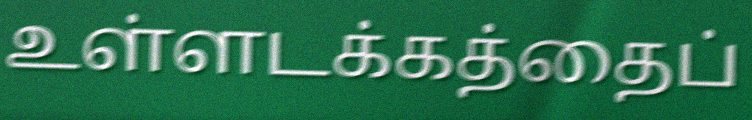
உள்ளடக்கத்தைப்